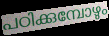
പഠിക്കുമ്പോഴും